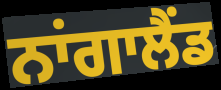
ਨਾਂਗਾਲੈਂਡ